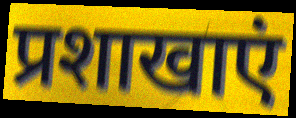
प्रशाखाएं